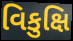
વિકુક્ષિ